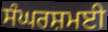
ਸੰਘਰਸ਼ਮਈ